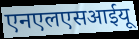
एनएलएसआईयू